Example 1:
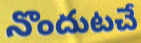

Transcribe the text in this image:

నొందుటచే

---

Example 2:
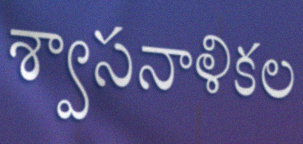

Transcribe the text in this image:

శ్వాసనాళికల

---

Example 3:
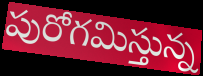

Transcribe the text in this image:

పురోగమిస్తున్న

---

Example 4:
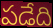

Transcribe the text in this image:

పడేది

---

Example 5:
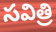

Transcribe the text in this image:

సవిత్రి